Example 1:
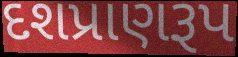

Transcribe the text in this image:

દશપ્રાણરૂપ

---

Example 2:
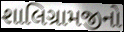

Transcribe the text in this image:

શાલિગ્રામજીનો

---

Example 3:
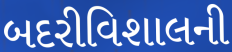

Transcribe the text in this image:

બદરીવિશાલની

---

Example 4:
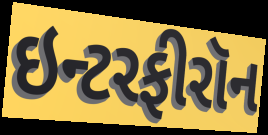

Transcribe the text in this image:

ઇન્ટરફીરૉન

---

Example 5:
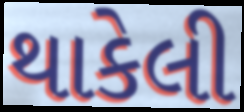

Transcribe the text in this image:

થાકેલી